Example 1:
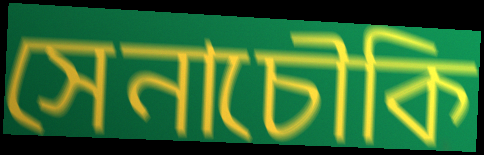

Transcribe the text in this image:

সেনাচৌকি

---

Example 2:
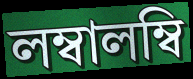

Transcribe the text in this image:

লম্বালম্বি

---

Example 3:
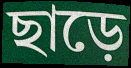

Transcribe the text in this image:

ছাড়ে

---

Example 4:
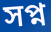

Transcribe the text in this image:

সপ্ন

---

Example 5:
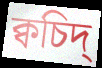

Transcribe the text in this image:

ক্বচিদ্